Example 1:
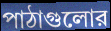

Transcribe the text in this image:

পাঠাগুলোর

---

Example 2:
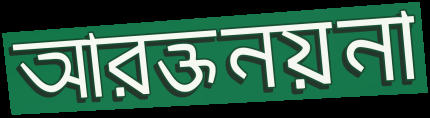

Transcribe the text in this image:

আরক্তনয়না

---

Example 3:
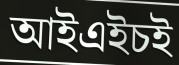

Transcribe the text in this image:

আইএইচই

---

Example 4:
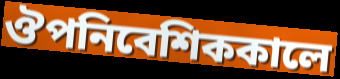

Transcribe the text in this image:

ঔপনিবেশিককালে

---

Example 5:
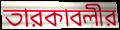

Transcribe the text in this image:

তারকাবলীর